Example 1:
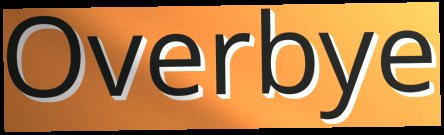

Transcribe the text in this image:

Overbye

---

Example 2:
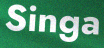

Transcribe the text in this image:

Singa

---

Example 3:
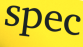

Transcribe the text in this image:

spec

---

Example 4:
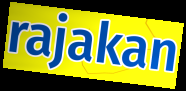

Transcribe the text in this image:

rajakan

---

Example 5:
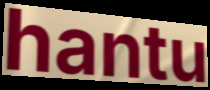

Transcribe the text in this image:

hantu